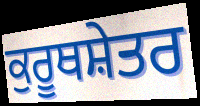
ਕੁਰੂਥਸ਼ੇਤਰ